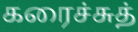
கரைச்சுத்